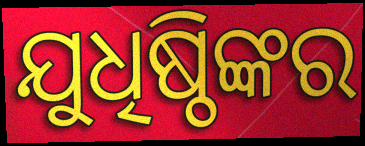
ଯୁଧିଷ୍ଠିଙ୍କର